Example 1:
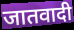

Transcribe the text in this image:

जातवादी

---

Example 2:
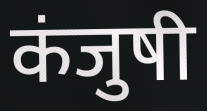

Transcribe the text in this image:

कंजुषी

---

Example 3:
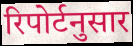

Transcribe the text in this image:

रिपोर्टनुसार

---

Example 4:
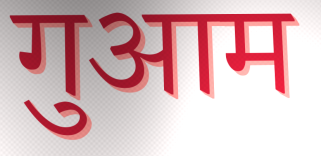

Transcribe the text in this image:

गुआम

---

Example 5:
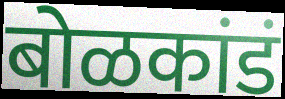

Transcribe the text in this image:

बोळकांडं